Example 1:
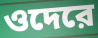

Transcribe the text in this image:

ওদেরে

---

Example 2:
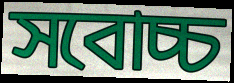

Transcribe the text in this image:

সবোচ্চ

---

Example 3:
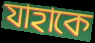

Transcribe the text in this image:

যাহাকে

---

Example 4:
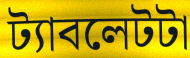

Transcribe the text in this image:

ট্যাবলেটটা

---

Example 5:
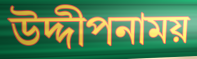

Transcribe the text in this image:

উদ্দীপনাময়